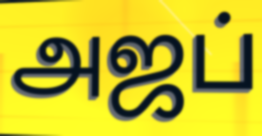
அஜப்